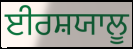
ਈਰਸ਼ਯਾਲੂ